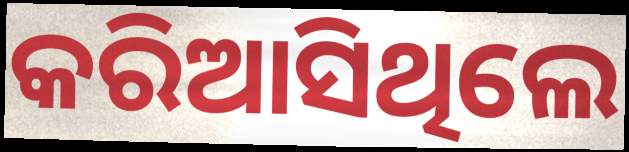
କରିଆସିଥିଲେ